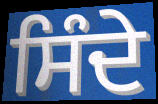
ਸਿੰਦੇ